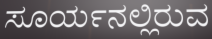
ಸೂರ್ಯನಲ್ಲಿರುವ